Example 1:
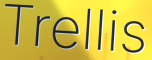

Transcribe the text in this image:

Trellis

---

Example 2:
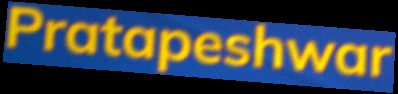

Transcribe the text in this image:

Pratapeshwar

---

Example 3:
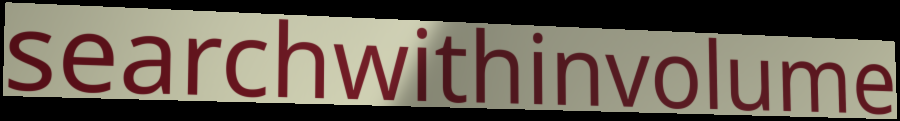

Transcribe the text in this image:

searchwithinvolume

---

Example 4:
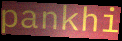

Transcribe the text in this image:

pankhi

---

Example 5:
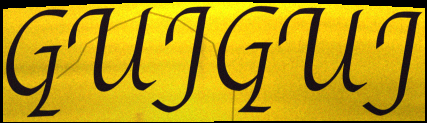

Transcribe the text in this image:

GUJGUJ